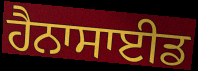
ਹੈਨਾਸਾਈਡ